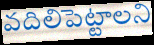
వదిలిపెట్టాలని